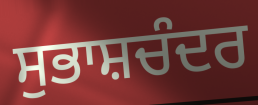
ਸੁਭਾਸ਼ਚੰਦਰ